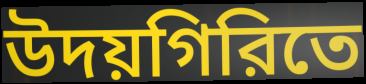
উদয়গিরিতে